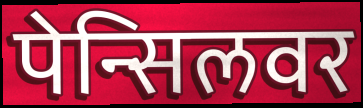
पेन्सिलवर